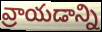
వ్రాయడాన్ని